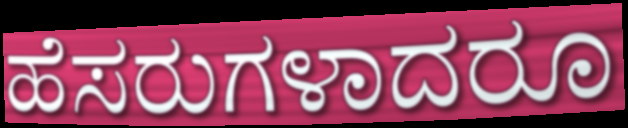
ಹೆಸರುಗಳಾದರೂ